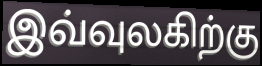
இவ்வுலகிற்கு